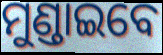
ମୁଣ୍ଡାଇବେ